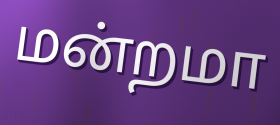
மன்றமா